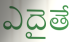
ఎదైతే